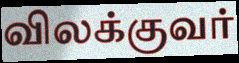
விலக்குவர்